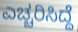
ಎಚ್ಚರಿಸಿದ್ದೆ